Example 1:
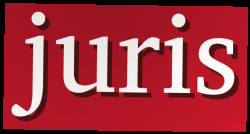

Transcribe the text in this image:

juris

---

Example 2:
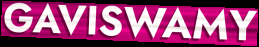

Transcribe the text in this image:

GAVISWAMY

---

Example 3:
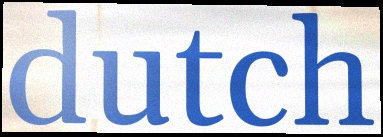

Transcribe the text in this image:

dutch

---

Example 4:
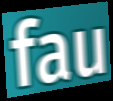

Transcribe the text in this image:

fau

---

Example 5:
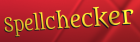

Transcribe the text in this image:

Spellchecker